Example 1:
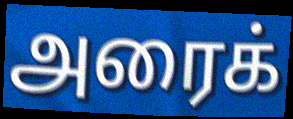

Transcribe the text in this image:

அரைக்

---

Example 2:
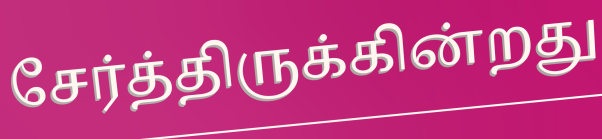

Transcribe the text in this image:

சேர்த்திருக்கின்றது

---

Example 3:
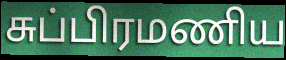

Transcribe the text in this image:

சுப்பிரமணிய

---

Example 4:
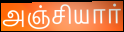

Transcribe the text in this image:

அஞ்சியார்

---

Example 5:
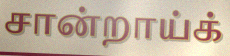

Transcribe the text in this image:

சான்றாய்க்